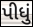
પીધું